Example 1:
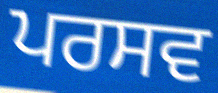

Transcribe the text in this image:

ਪਰਸਵ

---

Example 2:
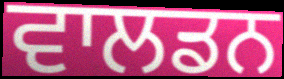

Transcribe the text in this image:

ਵਾਲਡਨ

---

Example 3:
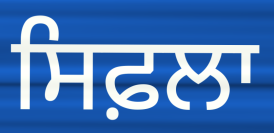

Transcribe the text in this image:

ਸਿਫ਼ਲਾ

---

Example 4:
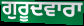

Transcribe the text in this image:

ਗੁਰੂਦਵਾਰਾ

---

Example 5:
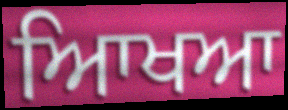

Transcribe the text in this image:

ਆਿਖਆ